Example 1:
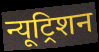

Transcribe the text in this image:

न्यूट्रिशन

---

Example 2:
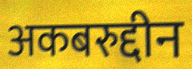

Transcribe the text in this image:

अकबरुद्दीन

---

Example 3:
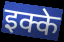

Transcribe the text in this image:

इक्के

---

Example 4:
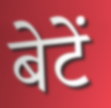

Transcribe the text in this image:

बेटें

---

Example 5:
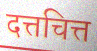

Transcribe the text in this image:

दत्तचित्त